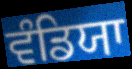
ਵੰਡਿਯਾ